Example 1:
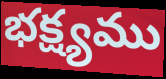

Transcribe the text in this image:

భక్ష్యము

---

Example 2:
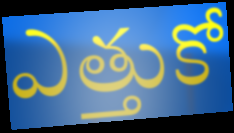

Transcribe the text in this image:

ఎత్తుకో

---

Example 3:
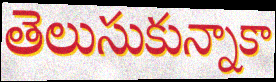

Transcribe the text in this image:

తెలుసుకున్నాకా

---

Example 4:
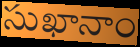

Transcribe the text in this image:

సుఖానాం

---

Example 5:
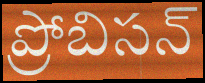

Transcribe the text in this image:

ప్రోబిసన్